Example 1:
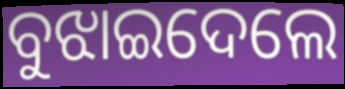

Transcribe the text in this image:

ବୁଝାଇଦେଲେ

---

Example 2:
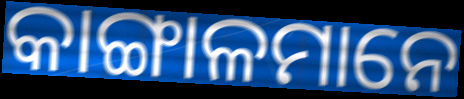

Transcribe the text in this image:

କାଙ୍ଗାଳମାନେ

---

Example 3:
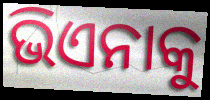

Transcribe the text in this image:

ଭିଏନାକୁ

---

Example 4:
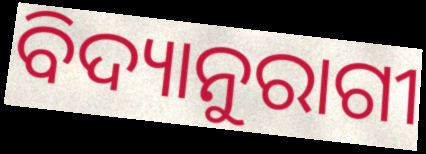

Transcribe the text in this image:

ବିଦ୍ୟାନୁରାଗୀ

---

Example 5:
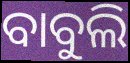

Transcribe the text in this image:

ବାବୁଲି